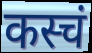
कस्चं